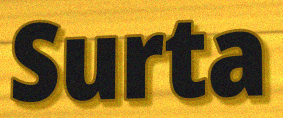
Surta